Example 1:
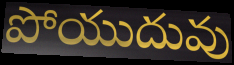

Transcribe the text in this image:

పోయుదువు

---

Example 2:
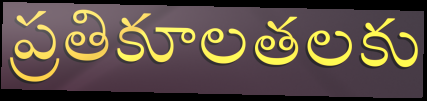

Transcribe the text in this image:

ప్రతికూలతలకు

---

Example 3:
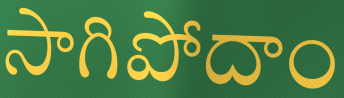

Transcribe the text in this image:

సాగిపోదాం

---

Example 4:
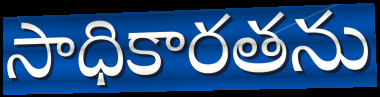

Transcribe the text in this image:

సాధికారతను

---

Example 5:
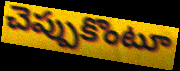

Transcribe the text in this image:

చెప్పుకొంటూ